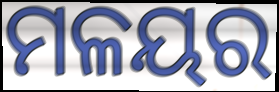
ମଳୟର